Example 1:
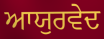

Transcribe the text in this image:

ਆਯੁਰਵੇਦ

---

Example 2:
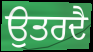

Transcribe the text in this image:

ਉਤਰਦੈ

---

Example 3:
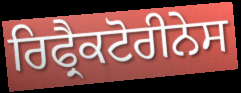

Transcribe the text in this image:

ਰਿਫ੍ਰੈਕਟੋਰੀਨੇਸ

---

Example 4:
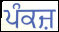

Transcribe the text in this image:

ਪੰਕਜ਼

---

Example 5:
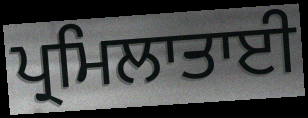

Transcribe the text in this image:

ਪ੍ਰਮਿਲਾਤਾਈ